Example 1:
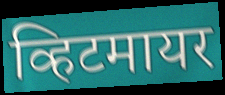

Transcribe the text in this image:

व्हिटमायर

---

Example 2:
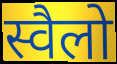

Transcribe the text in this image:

स्वैलो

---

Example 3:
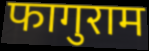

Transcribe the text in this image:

फागुराम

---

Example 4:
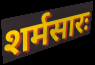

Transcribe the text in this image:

शर्मसारः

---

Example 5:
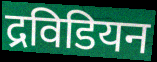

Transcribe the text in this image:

द्रविडियन